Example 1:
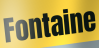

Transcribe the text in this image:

Fontaine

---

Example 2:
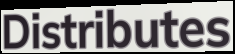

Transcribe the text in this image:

Distributes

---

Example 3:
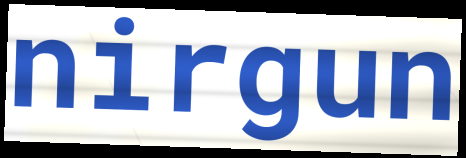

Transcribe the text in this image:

nirgun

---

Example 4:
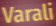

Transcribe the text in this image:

Varali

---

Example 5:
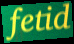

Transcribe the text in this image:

fetid